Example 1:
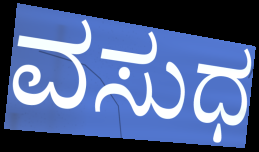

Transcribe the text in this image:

ವಸುಧ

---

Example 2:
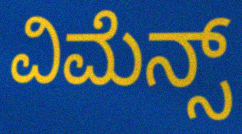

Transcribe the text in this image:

ವಿಮೆನ್ಸ್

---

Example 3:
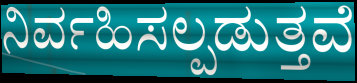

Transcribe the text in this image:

ನಿರ್ವಹಿಸಲ್ಪಡುತ್ತವೆ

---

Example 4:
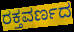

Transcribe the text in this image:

ರಕ್ತವರ್ಣದ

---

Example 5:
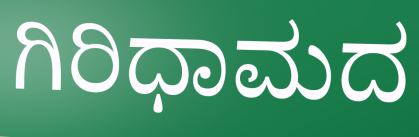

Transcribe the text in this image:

ಗಿರಿಧಾಮದ